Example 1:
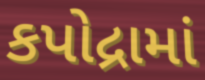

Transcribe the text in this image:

કપોદ્રામાં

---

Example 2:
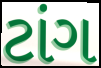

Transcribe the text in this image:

ટાંગ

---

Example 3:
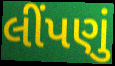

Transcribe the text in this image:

લીંપણું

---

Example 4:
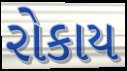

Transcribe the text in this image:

રોકાય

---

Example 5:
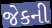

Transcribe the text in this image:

જેકની